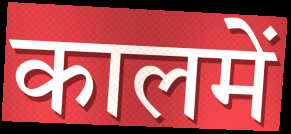
कालमें